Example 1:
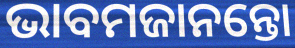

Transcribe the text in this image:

ଭାବମଜାନନ୍ତୋ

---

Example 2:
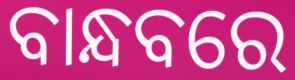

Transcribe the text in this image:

ବାନ୍ଧବରେ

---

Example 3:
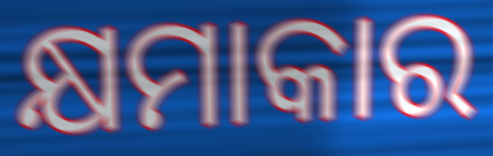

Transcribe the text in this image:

କ୍ଷମାକାର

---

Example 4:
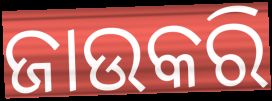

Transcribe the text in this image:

ଜାଉକରି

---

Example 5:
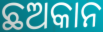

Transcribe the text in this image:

ଛଅକାନ